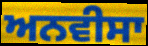
ਅਨਵੀਸਾ